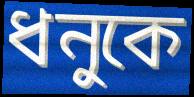
ধনুকে